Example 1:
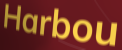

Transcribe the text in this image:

Harbou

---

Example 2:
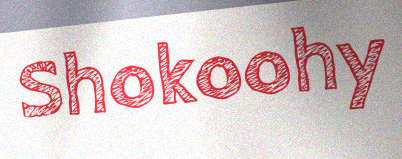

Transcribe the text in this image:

Shokoohy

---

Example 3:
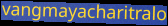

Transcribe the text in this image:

vangmayacharitralo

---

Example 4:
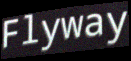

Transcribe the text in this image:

Flyway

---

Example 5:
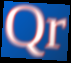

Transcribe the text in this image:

Qr